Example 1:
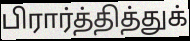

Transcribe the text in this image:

பிரார்த்தித்துக்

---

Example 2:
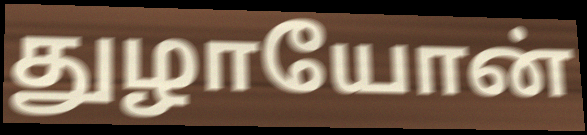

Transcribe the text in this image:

துழாயோன்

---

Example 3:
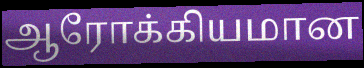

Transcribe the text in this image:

ஆரோக்கியமான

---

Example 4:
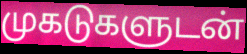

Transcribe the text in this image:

முகடுகளுடன்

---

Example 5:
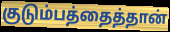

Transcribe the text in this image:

குடும்பத்தைத்தான்